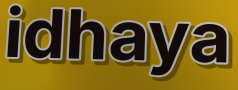
idhaya